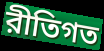
রীতিগত